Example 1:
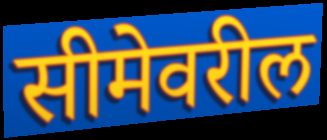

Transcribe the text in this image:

सीमेवरील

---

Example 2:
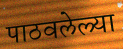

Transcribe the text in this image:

पाठवलेल्या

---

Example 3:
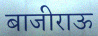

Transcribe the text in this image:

बाजीराऊ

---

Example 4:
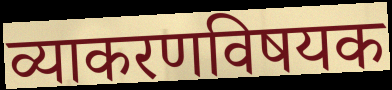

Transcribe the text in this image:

व्याकरणविषयक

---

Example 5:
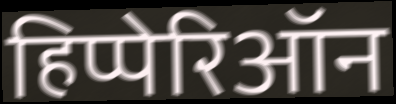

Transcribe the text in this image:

हिप्पेरिऑन